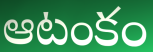
ఆటంకం